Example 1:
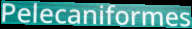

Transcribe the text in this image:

Pelecaniformes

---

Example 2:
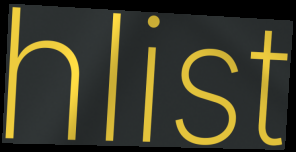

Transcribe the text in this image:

hlist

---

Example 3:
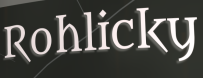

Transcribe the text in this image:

Rohlicky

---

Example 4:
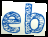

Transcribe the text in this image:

eb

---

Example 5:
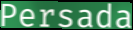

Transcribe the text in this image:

Persada